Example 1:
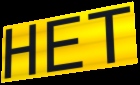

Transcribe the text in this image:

HET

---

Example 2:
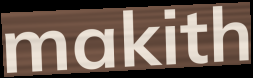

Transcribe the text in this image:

makith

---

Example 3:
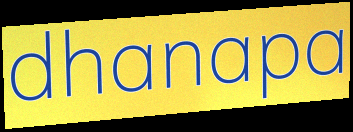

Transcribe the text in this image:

dhanapa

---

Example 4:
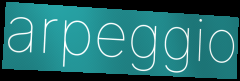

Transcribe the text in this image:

arpeggio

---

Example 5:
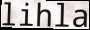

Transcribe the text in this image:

lihla